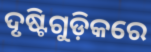
ଦୃଷ୍ଟିଗୁଡ଼ିକରେ